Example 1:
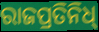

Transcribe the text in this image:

ରାଜପ୍ରତିନିଧ୍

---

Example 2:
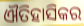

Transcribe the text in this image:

ଐତିହାସିକର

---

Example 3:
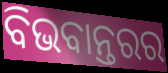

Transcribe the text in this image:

ବିଭବାନ୍ତରର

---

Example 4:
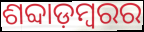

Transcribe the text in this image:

ଶବ୍ଦାଡ଼ମ୍ବରର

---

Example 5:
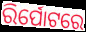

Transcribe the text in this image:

ରିର୍ପୋଟରେ